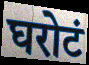
घरोटं